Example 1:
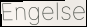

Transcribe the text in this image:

Engelse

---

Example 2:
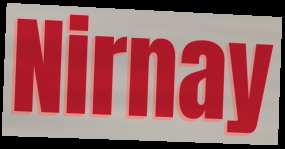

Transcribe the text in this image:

Nirnay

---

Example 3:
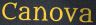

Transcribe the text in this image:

Canova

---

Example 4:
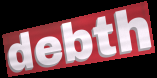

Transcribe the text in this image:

debth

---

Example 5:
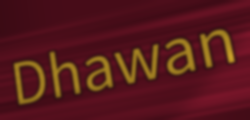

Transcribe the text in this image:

Dhawan